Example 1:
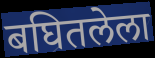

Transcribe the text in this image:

बघितलेला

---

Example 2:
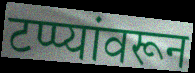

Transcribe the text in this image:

टप्प्यांवरून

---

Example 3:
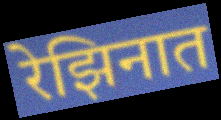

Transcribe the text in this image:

रेझिनात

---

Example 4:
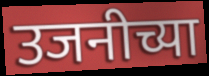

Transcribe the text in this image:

उजनीच्या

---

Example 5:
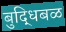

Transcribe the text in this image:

बुद्धिबळ